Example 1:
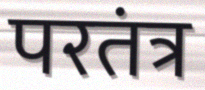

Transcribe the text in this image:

परतंत्र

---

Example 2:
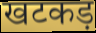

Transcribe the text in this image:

खटकड़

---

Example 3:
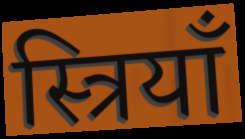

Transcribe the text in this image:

स्‍त्रियाँ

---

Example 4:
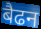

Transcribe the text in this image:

बैढन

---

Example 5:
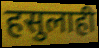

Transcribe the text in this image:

हसुलाही